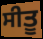
ਸੀਤੂ